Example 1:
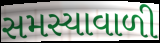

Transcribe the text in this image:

સમસ્યાવાળી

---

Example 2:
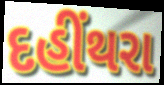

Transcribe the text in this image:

દહીંથરા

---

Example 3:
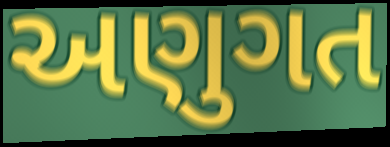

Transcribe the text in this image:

અણુગત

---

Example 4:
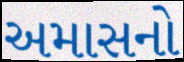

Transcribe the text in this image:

અમાસનો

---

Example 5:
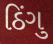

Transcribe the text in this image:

ઠિંગુ